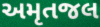
અમૃતજલ